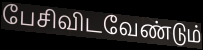
பேசிவிடவேண்டும்